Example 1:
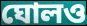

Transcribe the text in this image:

ঘোলও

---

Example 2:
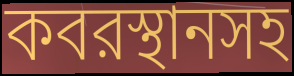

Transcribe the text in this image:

কবরস্থানসহ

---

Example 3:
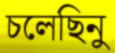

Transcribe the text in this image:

চলেছিনু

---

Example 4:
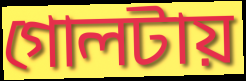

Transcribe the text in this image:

গোলটায়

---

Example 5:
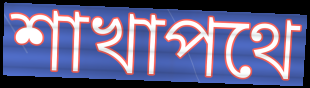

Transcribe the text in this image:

শাখাপথে